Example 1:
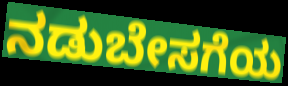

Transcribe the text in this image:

ನಡುಬೇಸಗೆಯ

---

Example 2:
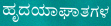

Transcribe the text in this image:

ಹೃದಯಾಘಾತಗಳ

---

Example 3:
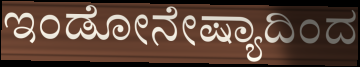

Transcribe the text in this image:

ಇಂಡೋನೇಷ್ಯಾದಿಂದ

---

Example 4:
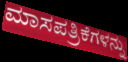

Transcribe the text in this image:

ಮಾಸಪತ್ರಿಕೆಗಳನ್ನು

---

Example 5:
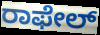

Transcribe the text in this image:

ರಾಫೇಲ್